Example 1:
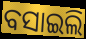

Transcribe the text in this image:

ବସାଇଲି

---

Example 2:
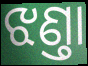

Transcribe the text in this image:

ଝଣ୍ତା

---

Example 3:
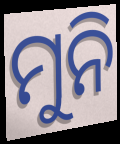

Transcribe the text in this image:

ମୁନି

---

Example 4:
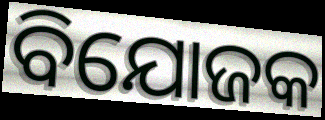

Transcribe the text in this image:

ବିଯୋଜକ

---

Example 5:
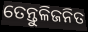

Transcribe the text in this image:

ତେନ୍ତୁଳିଜନିତ